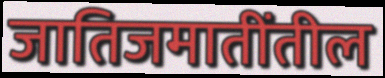
जातिजमातींतील